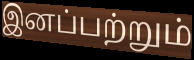
இனப்பற்றும்